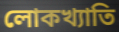
লোকখ্যাতি